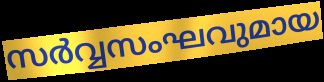
സർവ്വസംഘവുമായ